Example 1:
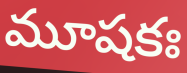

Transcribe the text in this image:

మూషకః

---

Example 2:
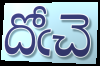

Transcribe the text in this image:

దోఁచె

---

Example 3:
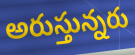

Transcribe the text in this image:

అరుస్తున్నరు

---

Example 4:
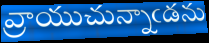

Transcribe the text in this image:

వ్రాయుచున్నాఁడను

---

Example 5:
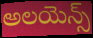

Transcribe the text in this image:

అలయెన్స్